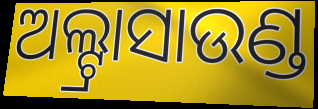
ଅଲ୍ଟ୍ରାସାଉଣ୍ଡ